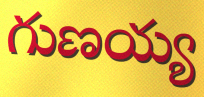
గుణయ్య